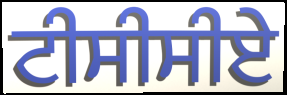
ਟੀਸੀਸੀਏ